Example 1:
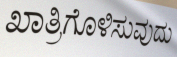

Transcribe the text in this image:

ಖಾತ್ರಿಗೊಳಿಸುವುದು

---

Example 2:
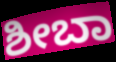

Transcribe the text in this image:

ಶೀಬಾ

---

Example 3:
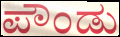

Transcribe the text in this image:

ಪೌಂಡು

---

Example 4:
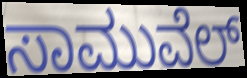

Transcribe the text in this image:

ಸಾಮುವೆಲ್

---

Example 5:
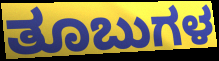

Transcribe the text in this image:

ತೂಬುಗಳ